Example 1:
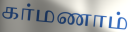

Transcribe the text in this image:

கர்மணாம்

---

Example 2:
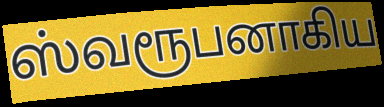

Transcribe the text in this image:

ஸ்வரூபனாகிய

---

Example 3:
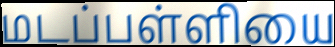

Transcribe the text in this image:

மடப்பள்ளியை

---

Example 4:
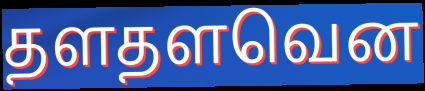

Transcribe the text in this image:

தளதளவென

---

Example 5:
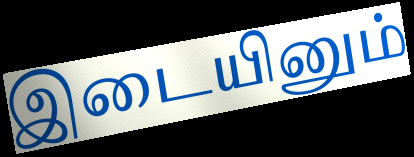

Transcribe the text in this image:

இடையினும்